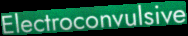
Electroconvulsive